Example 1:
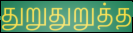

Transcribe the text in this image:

துறுதுறுத்த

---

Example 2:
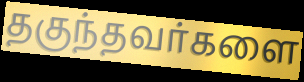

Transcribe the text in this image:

தகுந்தவர்களை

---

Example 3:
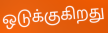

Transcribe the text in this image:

ஒடுக்குகிறது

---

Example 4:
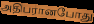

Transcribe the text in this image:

அதிபரானபோது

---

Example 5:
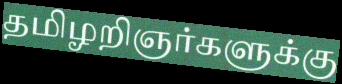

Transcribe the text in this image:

தமிழறிஞர்களுக்கு